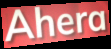
Ahera